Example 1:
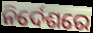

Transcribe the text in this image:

ନିର୍ଦେଶରେ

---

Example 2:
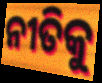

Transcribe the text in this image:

ନୀତିକୁ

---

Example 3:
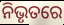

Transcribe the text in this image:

ନିଭୃତରେ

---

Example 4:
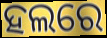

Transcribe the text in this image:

ହଲରେ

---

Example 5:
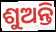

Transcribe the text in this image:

ଶୁଅନ୍ତି